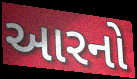
આરનો